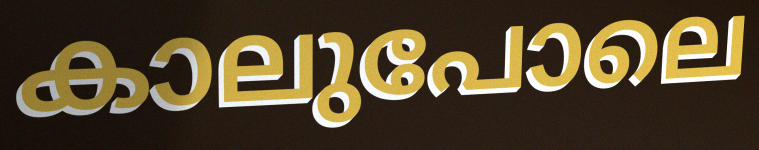
കാലുപോലെ